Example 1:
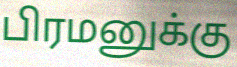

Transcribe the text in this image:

பிரமனுக்கு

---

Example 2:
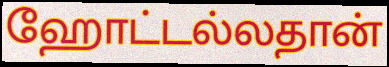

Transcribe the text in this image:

ஹோட்டல்லதான்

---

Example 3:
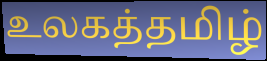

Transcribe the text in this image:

உலகத்தமிழ்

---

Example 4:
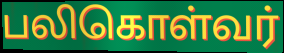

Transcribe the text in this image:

பலிகொள்வர்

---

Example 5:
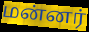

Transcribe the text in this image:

மன்னர்